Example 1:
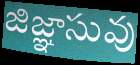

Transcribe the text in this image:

జిజ్ఞాసువు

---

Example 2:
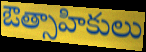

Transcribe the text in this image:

ఔత్సాహికులు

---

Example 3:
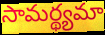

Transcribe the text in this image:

సామర్థ్యమా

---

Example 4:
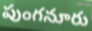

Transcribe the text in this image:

పుంగనూరు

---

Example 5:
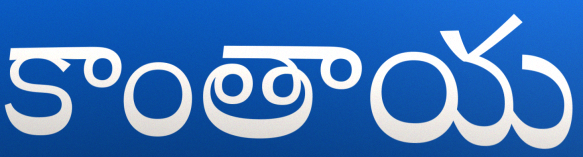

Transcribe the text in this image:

కాంతాయ